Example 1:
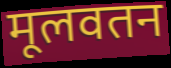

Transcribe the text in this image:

मूलवतन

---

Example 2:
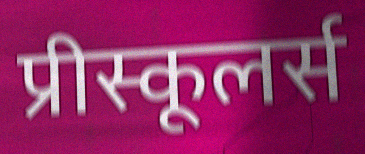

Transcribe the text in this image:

प्रीस्कूलर्स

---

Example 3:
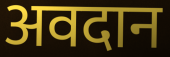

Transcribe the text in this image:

अवदान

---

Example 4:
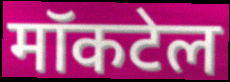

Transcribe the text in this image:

मॉकटेल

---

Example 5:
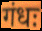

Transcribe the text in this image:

गंधः